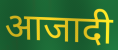
आजादी